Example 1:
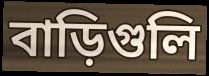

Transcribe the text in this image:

বাড়িগুলি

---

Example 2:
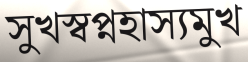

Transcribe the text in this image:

সুখস্বপ্নহাস্যমুখ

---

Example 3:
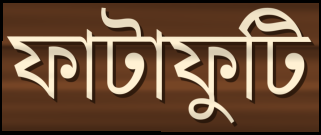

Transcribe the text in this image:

ফাটাফুটি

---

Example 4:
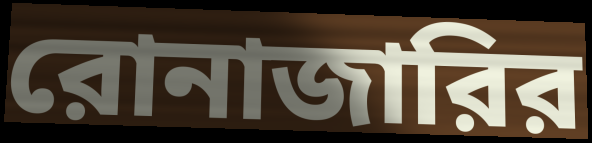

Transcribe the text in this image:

রোনাজারির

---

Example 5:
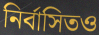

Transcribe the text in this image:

নির্বাসিতও